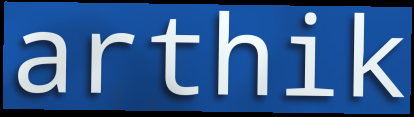
arthik